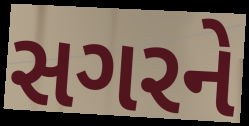
સગરને